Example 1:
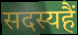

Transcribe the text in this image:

सदस्यहैं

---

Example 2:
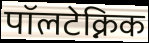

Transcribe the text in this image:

पॉलटेक्निक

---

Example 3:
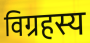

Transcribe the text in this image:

विग्रहस्य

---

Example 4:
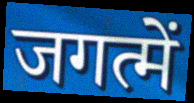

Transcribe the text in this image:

जगत्में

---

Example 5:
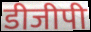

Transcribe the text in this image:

डीजीपी